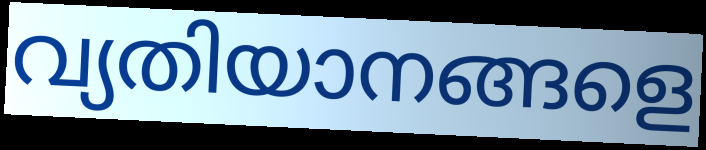
വ്യതിയാനങ്ങളെ